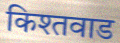
किश्तवाड